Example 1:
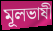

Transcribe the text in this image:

মূলভাষী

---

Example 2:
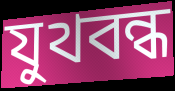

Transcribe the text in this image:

যুথবন্ধ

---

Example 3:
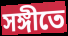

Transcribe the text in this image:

সঙ্গীতে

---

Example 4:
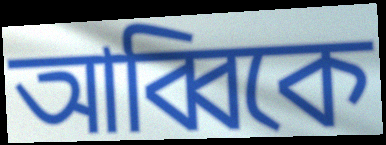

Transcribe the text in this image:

আব্বিকে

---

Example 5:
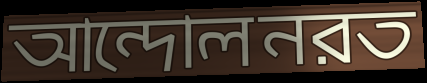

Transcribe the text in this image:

আন্দোলনরত